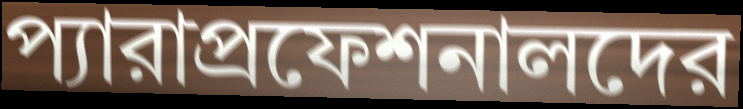
প্যারাপ্রফেশনালদের